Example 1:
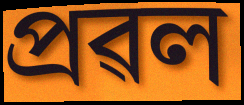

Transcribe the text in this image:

প্ৰৱল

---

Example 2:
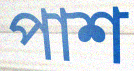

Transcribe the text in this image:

পাশ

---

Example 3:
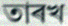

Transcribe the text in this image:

তাৰখ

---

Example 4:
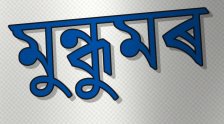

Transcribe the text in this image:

মুন্ধুমৰ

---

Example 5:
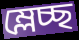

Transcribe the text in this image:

ম্লেচ্ছ